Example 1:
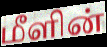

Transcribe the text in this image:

மீளின்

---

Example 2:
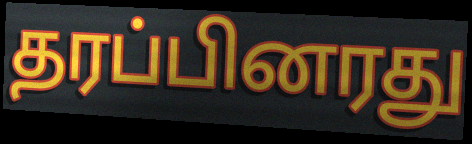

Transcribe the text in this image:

தரப்பினரது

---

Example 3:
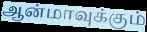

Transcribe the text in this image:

ஆன்மாவுக்கும்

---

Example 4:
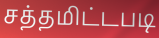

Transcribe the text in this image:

சத்தமிட்டபடி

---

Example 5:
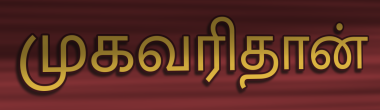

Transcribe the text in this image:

முகவரிதான்